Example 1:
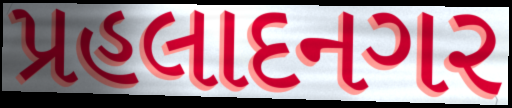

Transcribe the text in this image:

પ્રહલાદનગર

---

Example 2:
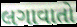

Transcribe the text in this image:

લગાવાતો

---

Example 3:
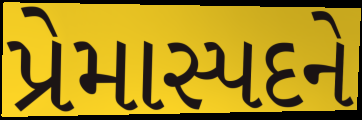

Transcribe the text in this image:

પ્રેમાસ્પદને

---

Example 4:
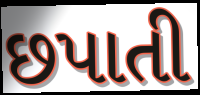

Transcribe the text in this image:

છપાતી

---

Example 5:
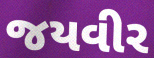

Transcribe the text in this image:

જયવીર